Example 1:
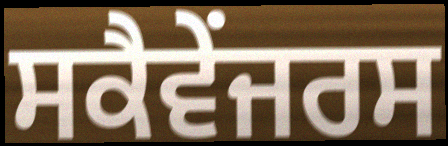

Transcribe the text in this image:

ਸਕੈਵੇਂਜਰਸ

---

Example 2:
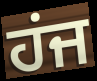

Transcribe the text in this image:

ਹਂਜ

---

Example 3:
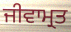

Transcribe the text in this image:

ਜੀਵਾਮ੍ਰਤ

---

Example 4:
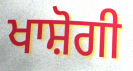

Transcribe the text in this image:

ਖਾਸ਼ੋਗੀ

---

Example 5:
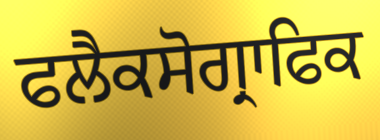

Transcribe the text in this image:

ਫਲੈਕਸੋਗ੍ਰਾਫਿਕ